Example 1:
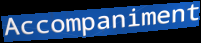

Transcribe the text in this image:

Accompaniment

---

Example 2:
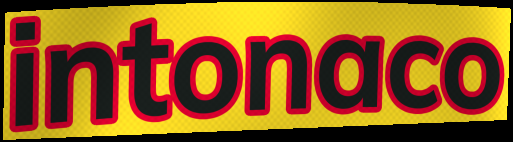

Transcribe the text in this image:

intonaco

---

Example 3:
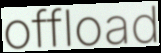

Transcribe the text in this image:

offload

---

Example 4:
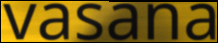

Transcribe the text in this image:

vasana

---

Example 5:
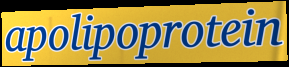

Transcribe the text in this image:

apolipoprotein